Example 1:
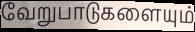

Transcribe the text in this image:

வேறுபாடுகளையும்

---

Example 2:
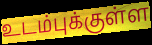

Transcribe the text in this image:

உடம்புக்குள்ள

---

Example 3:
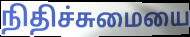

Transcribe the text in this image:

நிதிச்சுமையை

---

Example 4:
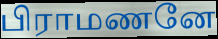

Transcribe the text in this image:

பிராமணனே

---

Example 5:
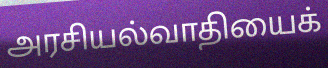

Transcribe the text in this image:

அரசியல்வாதியைக்